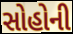
સોહોની